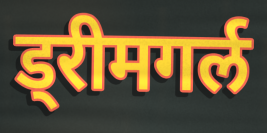
ड्रीमगर्ल